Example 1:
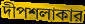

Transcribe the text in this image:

দীপশলাকার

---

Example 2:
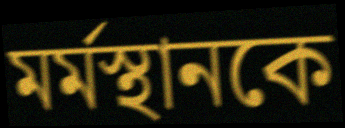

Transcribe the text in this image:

মর্মস্থানকে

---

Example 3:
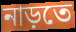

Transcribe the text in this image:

নাড়তে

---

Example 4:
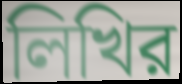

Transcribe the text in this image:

লিখির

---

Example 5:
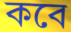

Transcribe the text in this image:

কবে